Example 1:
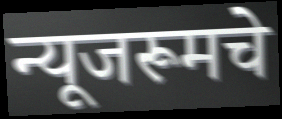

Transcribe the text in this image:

न्यूजरूमचे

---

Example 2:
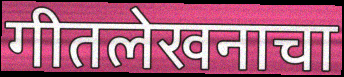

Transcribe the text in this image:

गीतलेखनाचा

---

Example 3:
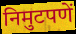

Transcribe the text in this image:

निमुटपणें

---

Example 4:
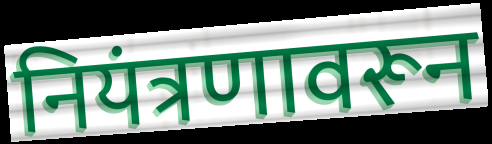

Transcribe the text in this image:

नियंत्रणावरून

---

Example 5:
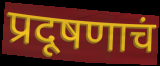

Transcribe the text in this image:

प्रदूषणाचं